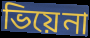
ভিয়েনা